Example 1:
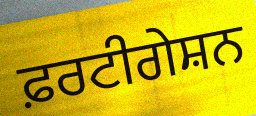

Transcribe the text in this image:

ਫ਼ਰਟੀਗੇਸ਼ਨ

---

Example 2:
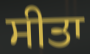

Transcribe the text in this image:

ਸੀਤਾ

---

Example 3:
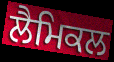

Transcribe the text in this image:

ਲੈਮਿਕਲ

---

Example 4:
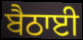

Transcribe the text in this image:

ਬੈਠਾਈ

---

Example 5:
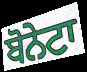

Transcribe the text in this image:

ਬੋਨੇਟਾ